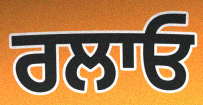
ਰਲਾਓ